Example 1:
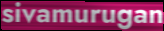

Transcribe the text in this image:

sivamurugan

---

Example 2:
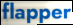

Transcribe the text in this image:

flapper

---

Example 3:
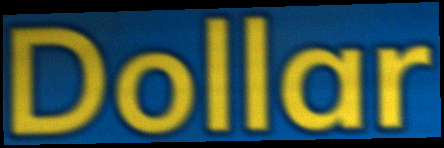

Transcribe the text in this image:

Dollar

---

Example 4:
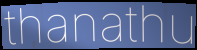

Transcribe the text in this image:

thanathu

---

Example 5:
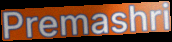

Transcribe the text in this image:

Premashri